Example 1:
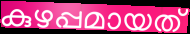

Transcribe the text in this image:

കുഴപ്പമായത്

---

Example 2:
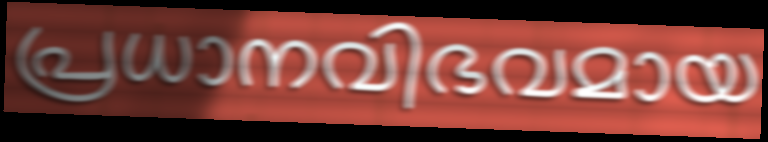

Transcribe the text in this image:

പ്രധാനവിഭവമായ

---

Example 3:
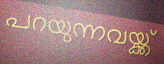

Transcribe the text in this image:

പറയുന്നവയ്ക്ക്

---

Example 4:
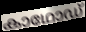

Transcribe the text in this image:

കാഥോഡ്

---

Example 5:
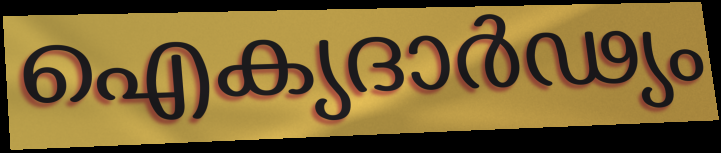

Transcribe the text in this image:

ഐക്യദാർഢ്യം